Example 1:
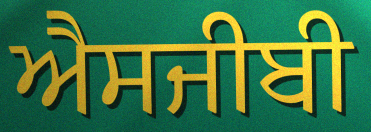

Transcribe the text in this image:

ਐਸਜੀਬੀ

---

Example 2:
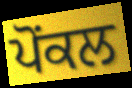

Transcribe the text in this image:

ਪੋਂਕਲ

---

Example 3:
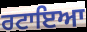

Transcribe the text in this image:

ਰਟਾਇਆ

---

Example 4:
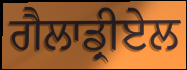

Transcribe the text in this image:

ਗੈਲਾਡ੍ਰੀਏਲ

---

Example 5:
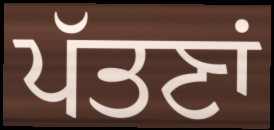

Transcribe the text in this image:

ਪੱਤਣਾਂ